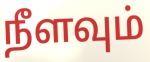
நீளவும்